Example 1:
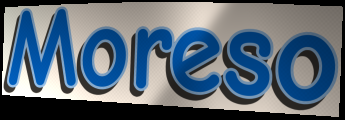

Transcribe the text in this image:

Moreso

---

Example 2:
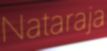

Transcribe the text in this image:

Nataraja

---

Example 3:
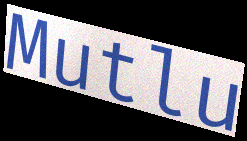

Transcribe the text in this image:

Mutlu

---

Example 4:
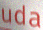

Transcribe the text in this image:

uda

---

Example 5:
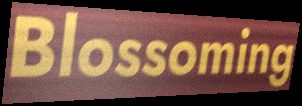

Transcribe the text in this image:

Blossoming